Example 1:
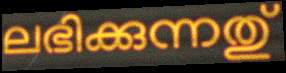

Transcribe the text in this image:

ലഭിക്കുന്നതു്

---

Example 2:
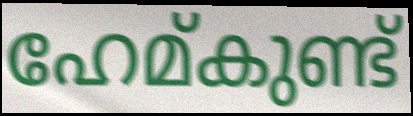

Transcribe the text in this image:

ഹേമ്കുണ്ട്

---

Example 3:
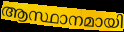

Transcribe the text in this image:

ആസ്ഥാനമായി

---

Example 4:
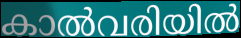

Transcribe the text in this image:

കാൽവരിയിൽ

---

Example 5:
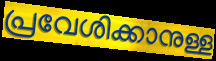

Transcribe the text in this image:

പ്രവേശിക്കാനുള്ള